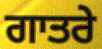
ਗਾਤਰੇ